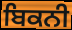
ਬਿਕਨੀ